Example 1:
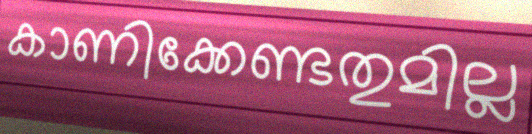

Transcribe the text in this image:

കാണിക്കേണ്ടതുമില്ല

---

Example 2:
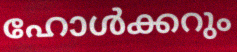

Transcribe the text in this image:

ഹോൾക്കറും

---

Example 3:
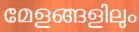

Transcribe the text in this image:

മേളങ്ങളിലും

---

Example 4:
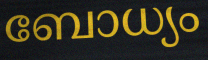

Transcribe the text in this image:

ബോധ്യം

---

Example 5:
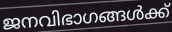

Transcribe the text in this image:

ജനവിഭാഗങ്ങൾക്ക്